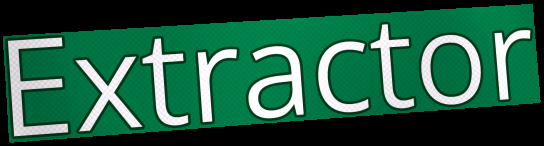
Extractor